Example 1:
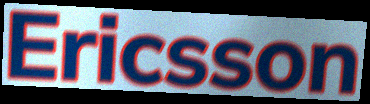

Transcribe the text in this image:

Ericsson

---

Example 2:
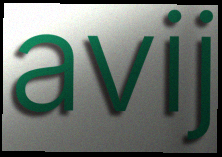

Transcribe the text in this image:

avij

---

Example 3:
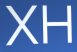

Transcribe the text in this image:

XH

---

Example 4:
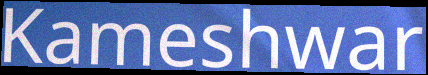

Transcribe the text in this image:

Kameshwar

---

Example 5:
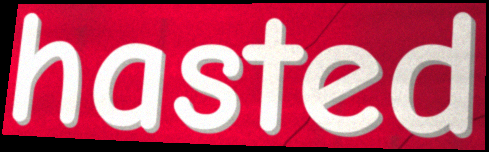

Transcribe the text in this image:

hasted